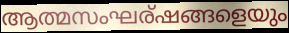
ആത്മസംഘര്ഷങ്ങളെയും